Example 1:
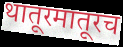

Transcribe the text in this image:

थातूरमातूरच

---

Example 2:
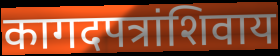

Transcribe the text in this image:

कागदपत्रांशिवाय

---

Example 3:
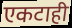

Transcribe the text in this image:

एकटाही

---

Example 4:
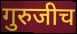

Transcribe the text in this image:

गुरुजीच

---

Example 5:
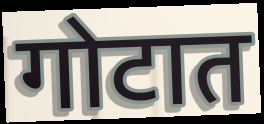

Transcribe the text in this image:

गोटात